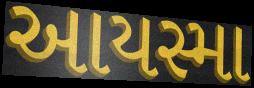
આયસ્મા